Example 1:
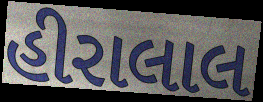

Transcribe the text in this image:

હીરાલાલ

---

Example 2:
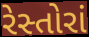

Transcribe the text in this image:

રેસ્તોરાં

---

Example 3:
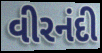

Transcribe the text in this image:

વીરનંદી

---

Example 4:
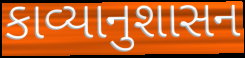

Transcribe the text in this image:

કાવ્યાનુશાસન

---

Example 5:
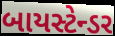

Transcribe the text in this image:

બાયસ્ટેન્ડર